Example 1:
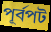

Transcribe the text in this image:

পূর্বপট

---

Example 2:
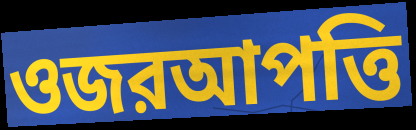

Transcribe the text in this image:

ওজরআপত্তি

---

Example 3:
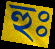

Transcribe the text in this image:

হুঃ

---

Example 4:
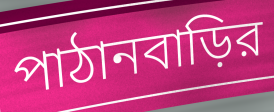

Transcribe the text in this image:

পাঠানবাড়ির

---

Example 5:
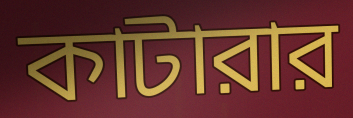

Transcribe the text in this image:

কাটারার